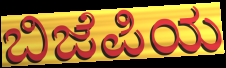
ಬಿಜೆಪಿಯ